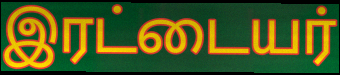
இரட்டையர்